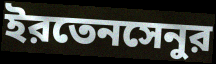
ইরতেনসেনুর